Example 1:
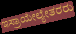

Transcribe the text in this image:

ಇಸ್ರಾಯೇಲ್ಯೇತರರು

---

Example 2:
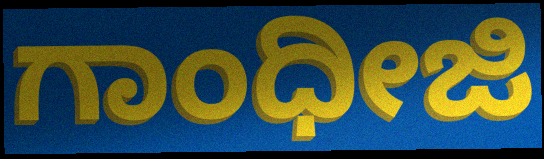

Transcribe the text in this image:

ಗಾಂಧೀಜಿ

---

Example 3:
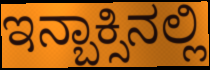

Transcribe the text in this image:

ಇನ್ಬಾಕ್ಸಿನಲ್ಲಿ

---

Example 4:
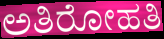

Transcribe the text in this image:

ಅತಿರೋಹತಿ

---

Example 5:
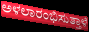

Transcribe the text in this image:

ಅಳಲಾರಂಭಿಸುತ್ತಾಳೆ